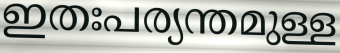
ഇതഃപര്യന്തമുള്ള